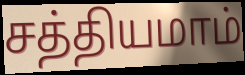
சத்தியமாம்